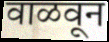
वाळवून